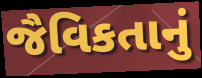
જૈવિકતાનું